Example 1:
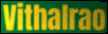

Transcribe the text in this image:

Vithalrao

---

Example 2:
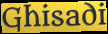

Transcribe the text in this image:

Ghisadi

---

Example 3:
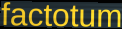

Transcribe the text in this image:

factotum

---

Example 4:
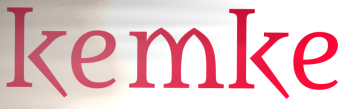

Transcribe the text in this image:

kemke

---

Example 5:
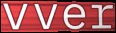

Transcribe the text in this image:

vver